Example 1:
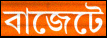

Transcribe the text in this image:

বাজেটে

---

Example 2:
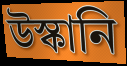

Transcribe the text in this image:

উস্কানি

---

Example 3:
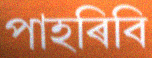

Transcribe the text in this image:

পাহৰিবি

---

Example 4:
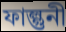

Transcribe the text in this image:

ফাল্গুনী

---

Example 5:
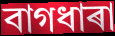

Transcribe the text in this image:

বাগধাৰা